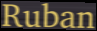
Ruban